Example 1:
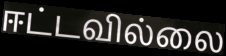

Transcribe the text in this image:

ஈட்டவில்லை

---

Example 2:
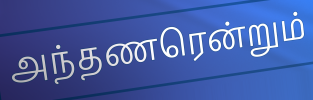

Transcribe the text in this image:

அந்தணரென்றும்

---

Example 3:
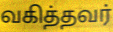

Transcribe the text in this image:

வகித்தவர்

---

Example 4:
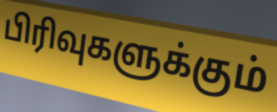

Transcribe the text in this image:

பிரிவுகளுக்கும்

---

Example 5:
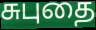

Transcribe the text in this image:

சுபுதை